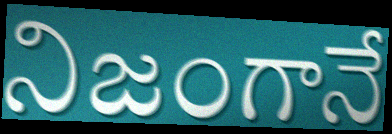
నిజంగానే